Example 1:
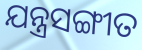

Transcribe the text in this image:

ଯନ୍ତ୍ରସଙ୍ଗୀତ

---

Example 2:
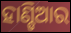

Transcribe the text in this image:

ହାଣ୍ଡିଆର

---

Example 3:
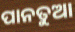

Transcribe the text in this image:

ପାନତୁଆ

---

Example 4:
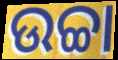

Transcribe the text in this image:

ଉଚ୍ଚା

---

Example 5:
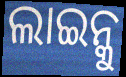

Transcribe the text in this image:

ଲାଇନ୍କୁ